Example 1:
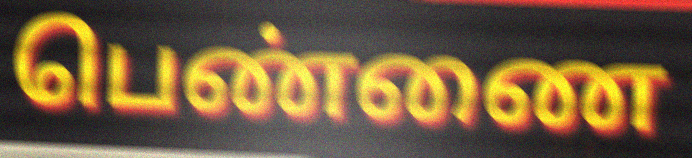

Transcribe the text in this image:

பெண்ணை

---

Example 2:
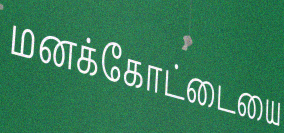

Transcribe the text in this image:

மனக்கோட்டையை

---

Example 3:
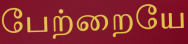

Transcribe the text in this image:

பேற்றையே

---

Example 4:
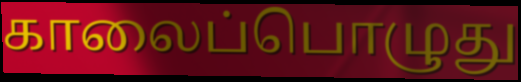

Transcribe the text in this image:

காலைப்பொழுது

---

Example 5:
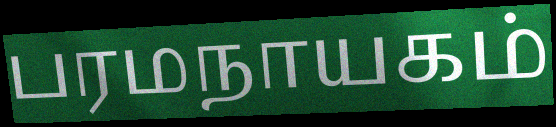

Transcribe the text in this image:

பரமநாயகம்